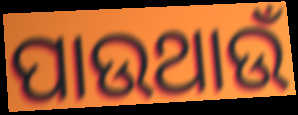
ପାଉଥାଉଁ